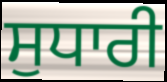
ਸੁਧਾਰੀ